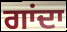
ਗਾਂਦਾ